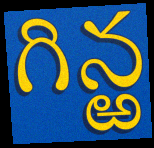
గిన్ఱ